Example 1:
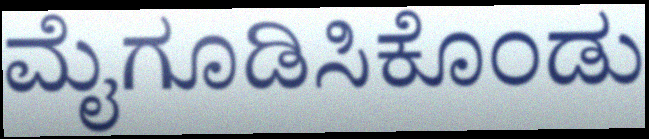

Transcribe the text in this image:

ಮೈಗೂಡಿಸಿಕೊಂಡು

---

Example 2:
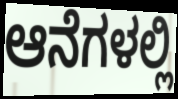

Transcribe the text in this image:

ಆನೆಗಳಲ್ಲಿ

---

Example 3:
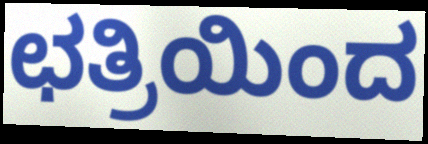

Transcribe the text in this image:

ಛತ್ರಿಯಿಂದ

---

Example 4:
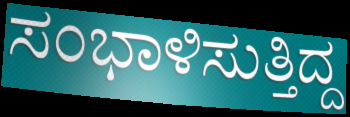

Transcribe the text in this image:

ಸಂಭಾಳಿಸುತ್ತಿದ್ದ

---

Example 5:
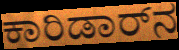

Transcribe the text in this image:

ಕಾರಿಡಾರ್‌ನ